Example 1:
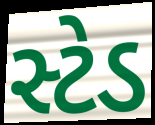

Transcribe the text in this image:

સ્ટેડ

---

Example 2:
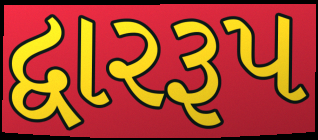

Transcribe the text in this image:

દ્વારરૂપ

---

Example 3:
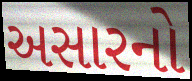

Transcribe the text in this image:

અસારનો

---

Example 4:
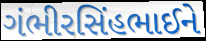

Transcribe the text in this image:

ગંભીરસિંહભાઈને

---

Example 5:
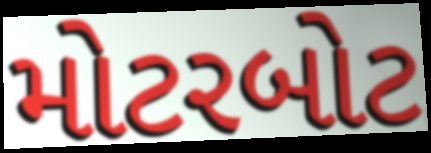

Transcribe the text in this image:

મોટરબોટ